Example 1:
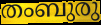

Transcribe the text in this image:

തംബുരു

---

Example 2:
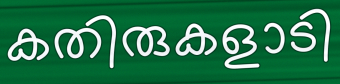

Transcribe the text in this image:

കതിരുകളാടി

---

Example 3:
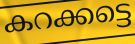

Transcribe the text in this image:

കറക്കട്ടെ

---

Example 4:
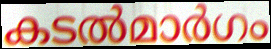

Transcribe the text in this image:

കടൽമാർഗം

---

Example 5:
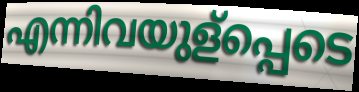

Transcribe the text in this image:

എന്നിവയുള്പ്പെടെ